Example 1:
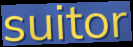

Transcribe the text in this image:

suitor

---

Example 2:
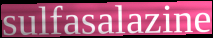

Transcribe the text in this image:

sulfasalazine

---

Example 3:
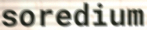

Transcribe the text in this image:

soredium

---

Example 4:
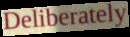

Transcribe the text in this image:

Deliberately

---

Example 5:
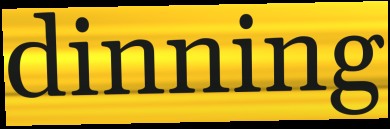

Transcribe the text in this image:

dinning